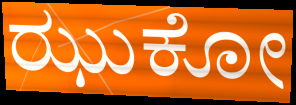
ಝುಕೋ